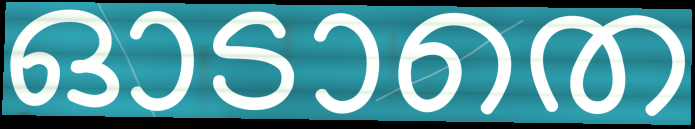
ഓടാതെ